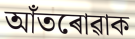
আঁতৰোৱাক